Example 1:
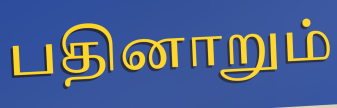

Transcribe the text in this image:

பதினாறும்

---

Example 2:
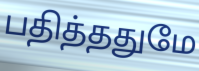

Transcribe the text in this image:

பதித்ததுமே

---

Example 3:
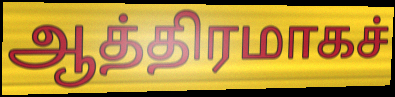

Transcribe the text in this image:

ஆத்திரமாகச்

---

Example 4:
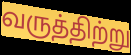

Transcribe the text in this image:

வருத்திற்று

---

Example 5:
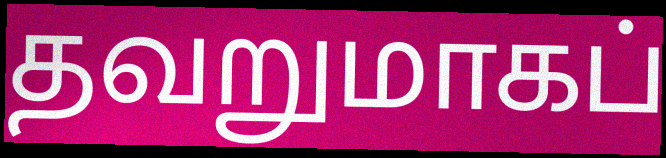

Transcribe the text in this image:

தவறுமாகப்